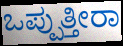
ಒಪ್ಪುತ್ತೀರಾ